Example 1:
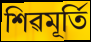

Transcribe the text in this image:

শিৱমূৰ্তি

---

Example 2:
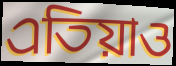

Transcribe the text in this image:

এতিয়াও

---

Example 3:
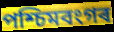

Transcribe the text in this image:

পশ্চিমবংগৰ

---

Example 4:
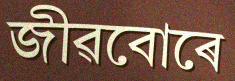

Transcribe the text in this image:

জীৱবোৰে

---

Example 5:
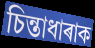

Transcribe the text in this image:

চিন্তাধাৰাক